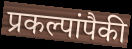
प्रकल्पांपैकी